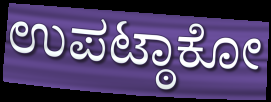
ಉಪಟ್ಠಾಕೋ